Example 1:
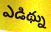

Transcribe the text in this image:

ఎడిథ్ను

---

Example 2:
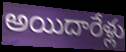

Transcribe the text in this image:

అయిదారేళ్లు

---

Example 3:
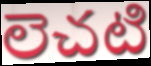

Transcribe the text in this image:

లెచటి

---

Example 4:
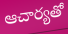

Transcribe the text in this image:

ఆచార్యతో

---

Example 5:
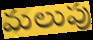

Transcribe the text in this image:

మలుపు